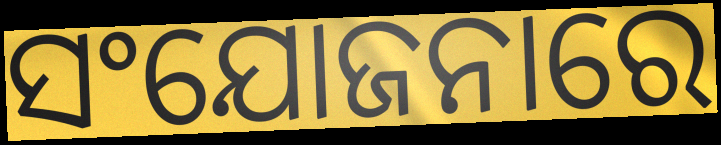
ସଂଯୋଜନାରେ